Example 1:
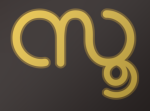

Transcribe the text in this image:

സൂ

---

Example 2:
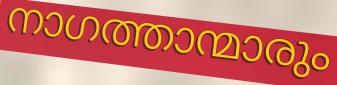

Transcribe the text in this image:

നാഗത്താന്മാരും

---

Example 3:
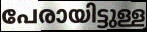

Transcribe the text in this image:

പേരായിട്ടുള്ള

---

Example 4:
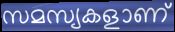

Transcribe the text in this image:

സമസ്യകളാണ്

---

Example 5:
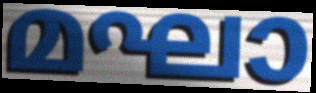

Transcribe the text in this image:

മഘാ